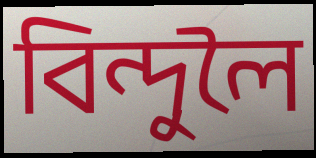
বিন্দুলৈ